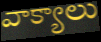
వాక్యాలు